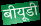
बीयूडी